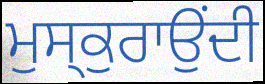
ਮੁਸ੍ਕੁਰਾਉਂਦੀ